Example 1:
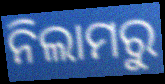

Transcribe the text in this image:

ନିଲାମରୁ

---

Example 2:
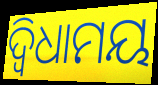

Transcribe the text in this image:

ଦ୍ୱିଧାମୟ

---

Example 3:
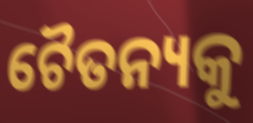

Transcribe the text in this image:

ଚୈତନ୍ୟକୁ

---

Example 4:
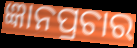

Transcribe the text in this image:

ଜ୍ଞାନପ୍ରଚାର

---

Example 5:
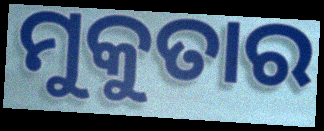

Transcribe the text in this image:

ମୁକୁତାର